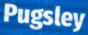
Pugsley